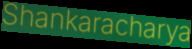
Shankaracharya